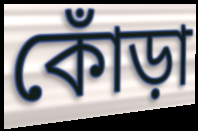
কোঁড়া